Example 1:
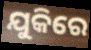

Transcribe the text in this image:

ଯୁକିରେ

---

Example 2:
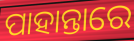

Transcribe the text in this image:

ପାହାନ୍ତାରେ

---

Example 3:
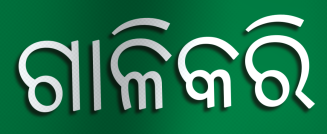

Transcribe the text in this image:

ଗାଳିକରି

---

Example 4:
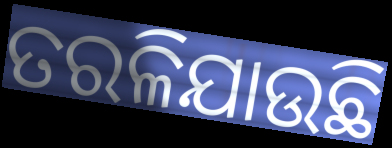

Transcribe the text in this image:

ତରଳିଯାଉଛି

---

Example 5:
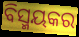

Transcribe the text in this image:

ବିସ୍ମୟକର